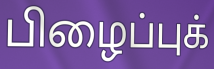
பிழைப்புக்